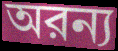
অরন্য